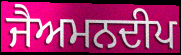
ਜੈਅਮਨਦੀਪ